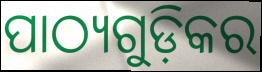
ପାଠ୍ୟଗୁଡ଼ିକର